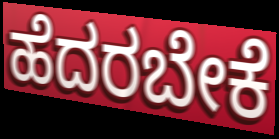
ಹೆದರಬೇಕೆ